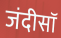
जंदीसॉ